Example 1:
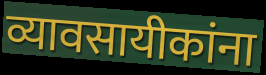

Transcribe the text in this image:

व्यावसायीकांना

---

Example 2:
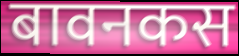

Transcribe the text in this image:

बावनकस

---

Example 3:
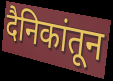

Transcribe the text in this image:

दैनिकांतून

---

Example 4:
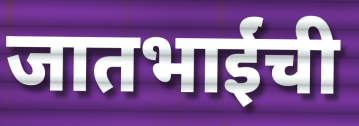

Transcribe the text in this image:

जातभाईंची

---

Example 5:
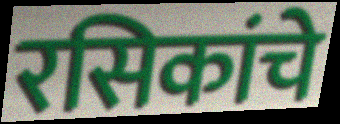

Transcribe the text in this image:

रसिकांचे